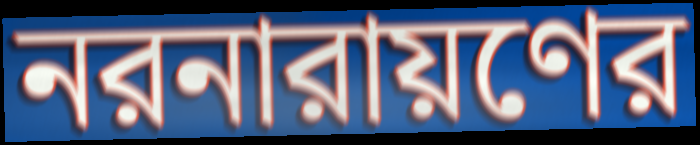
নরনারায়ণের